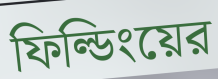
ফিল্ডিংয়ের